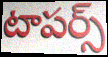
టాపర్స్